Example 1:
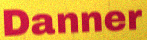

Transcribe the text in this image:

Danner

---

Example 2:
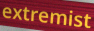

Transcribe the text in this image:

extremist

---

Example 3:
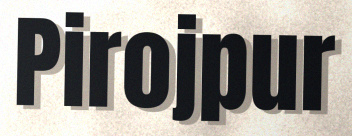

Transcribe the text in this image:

Pirojpur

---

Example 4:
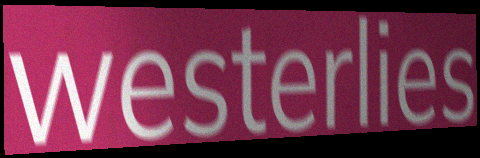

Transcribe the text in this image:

westerlies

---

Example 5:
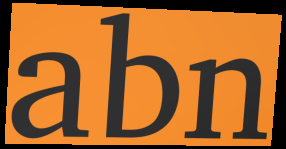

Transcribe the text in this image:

abn